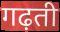
गढ़ती